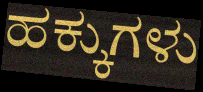
ಹಕ್ಕುಗಳು